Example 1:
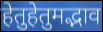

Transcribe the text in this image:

हेतुहेतुमद्भाव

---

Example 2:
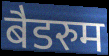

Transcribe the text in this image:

बैडरुम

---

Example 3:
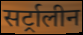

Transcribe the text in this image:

सर्ट्रालीन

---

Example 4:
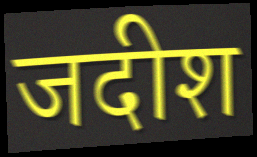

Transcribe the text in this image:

जदीश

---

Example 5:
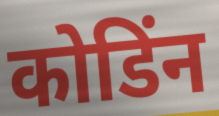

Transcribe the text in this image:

कोडिंन